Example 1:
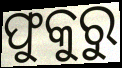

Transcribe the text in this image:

ଫୁକୁରୁ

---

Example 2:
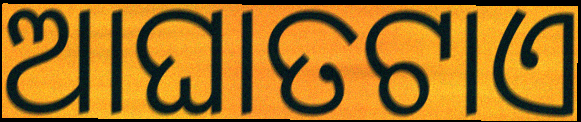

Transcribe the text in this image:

ଆଘାତଟାଏ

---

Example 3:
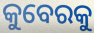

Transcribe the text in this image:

କୁବେରକୁ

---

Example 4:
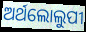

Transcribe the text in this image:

ଅର୍ଥଲୋଲୁପୀ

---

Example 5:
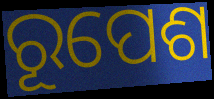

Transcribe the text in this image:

ରୂପେଶ